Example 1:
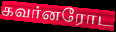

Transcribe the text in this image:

கவர்னரோட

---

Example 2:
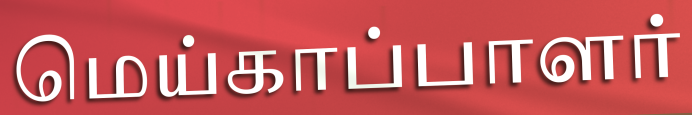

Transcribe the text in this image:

மெய்காப்பாளர்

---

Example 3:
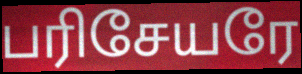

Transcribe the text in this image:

பரிசேயரே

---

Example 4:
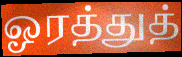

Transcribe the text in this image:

ஓரத்துத்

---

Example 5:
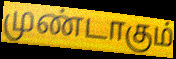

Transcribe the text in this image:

முண்டாகும்